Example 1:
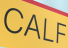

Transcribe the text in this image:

CALF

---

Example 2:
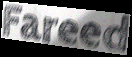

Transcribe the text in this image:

Fareed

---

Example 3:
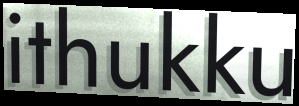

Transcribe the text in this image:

ithukku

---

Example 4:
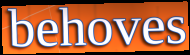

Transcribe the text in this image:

behoves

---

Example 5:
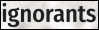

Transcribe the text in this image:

ignorants